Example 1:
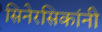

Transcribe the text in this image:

सिनेरसिकांनी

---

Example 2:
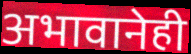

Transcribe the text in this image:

अभावानेही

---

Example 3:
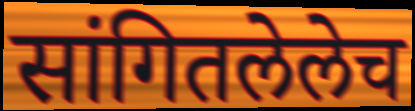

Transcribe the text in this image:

सांगितलेलेच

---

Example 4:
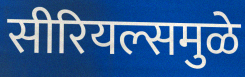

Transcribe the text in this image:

सीरियल्समुळे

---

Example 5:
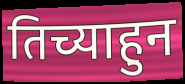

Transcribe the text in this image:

तिच्याहुन